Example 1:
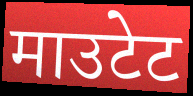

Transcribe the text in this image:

माउटेट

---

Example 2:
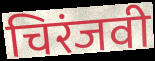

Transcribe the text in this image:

चिरंजवी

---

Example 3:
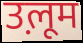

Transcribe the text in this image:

उ़लूम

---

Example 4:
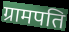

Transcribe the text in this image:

ग्रामपति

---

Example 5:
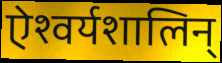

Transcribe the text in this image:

ऐश्वर्यशालिन्